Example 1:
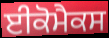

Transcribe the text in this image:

ਈਕੋਮੈਕਸ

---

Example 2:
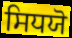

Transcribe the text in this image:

ਸਿਧਯੋ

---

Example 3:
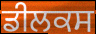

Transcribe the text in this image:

ਡੀਲਕਸ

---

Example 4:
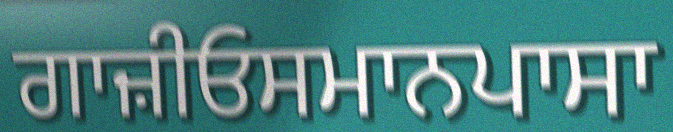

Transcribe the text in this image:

ਗਾਜ਼ੀਓਸਮਾਨਪਾਸਾ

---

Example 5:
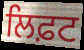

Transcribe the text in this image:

ਲਿਫ਼ਟ